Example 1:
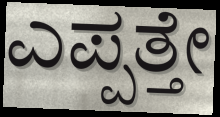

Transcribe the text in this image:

ಎಪ್ಪತ್ತೇ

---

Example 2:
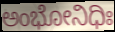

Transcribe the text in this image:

ಅಂಭೋನಿಧಿಃ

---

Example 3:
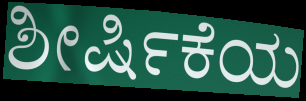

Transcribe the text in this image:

ಶೀರ್ಷಿಕೆಯ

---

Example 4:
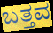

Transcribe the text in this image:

ಬತ್ತವ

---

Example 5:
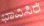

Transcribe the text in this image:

ಭಾವಿಸಿರೆ